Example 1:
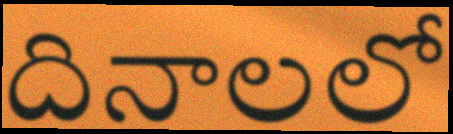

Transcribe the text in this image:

దినాలలో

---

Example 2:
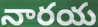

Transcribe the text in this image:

నారయ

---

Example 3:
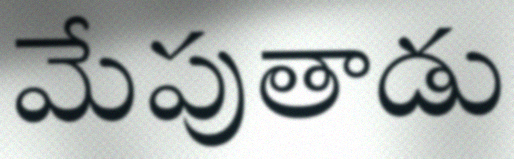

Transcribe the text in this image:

మేపుతాడు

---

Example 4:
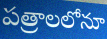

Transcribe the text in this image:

పత్రాలలోనూ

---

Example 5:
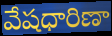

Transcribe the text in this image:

వేషధారిణా